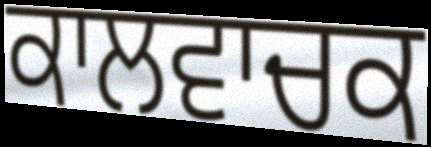
ਕਾਲਵਾਚਕ